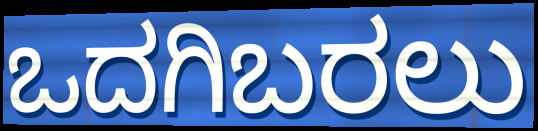
ಒದಗಿಬರಲು